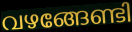
വഴങ്ങേണ്ടി